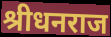
श्रीधनराज